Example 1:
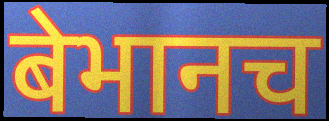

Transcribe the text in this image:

बेभानच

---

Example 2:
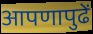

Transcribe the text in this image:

आपणापुढें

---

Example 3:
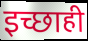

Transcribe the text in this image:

इच्छाही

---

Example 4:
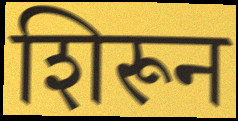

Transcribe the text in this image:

शिरून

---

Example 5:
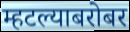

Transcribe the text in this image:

म्हटल्याबरोबर